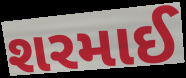
શરમાઈ